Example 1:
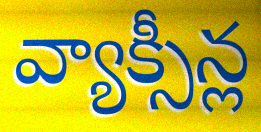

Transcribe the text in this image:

వ్యాక్సీన్ల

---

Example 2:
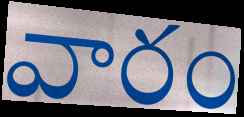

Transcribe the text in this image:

వారం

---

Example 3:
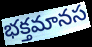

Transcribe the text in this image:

భక్తమానస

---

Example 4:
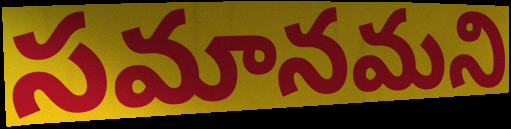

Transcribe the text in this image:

సమానమని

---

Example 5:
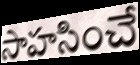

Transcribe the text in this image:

సాహసించే